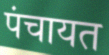
पंचायत